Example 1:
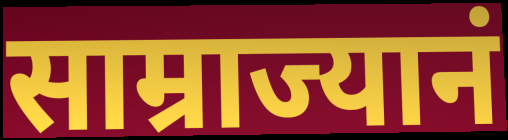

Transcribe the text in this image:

साम्राज्यानं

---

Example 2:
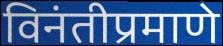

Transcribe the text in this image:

विनंतीप्रमाणे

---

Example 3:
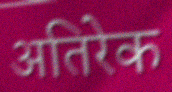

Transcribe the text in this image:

अतिरेक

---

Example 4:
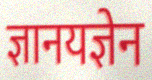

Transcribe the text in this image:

ज्ञानयज्ञेन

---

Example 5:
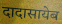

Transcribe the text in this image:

दादासायेब